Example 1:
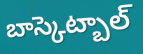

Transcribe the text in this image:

బాస్కెట్బాల్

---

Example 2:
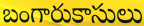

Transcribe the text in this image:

బంగారుకాసులు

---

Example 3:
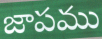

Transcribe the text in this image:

జాపము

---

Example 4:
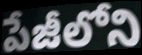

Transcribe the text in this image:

పేజీలోని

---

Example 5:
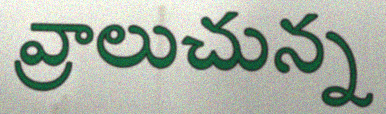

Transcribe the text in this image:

వ్రాలుచున్న